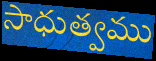
సాధుత్వము